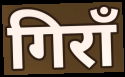
गिराँ